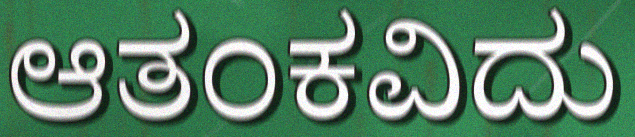
ಆತಂಕವಿದು